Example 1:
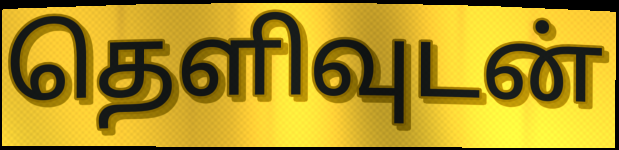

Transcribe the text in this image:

தெளிவுடன்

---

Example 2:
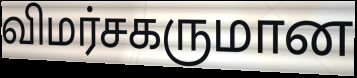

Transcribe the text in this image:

விமர்சகருமான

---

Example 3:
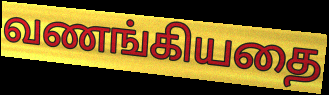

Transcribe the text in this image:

வணங்கியதை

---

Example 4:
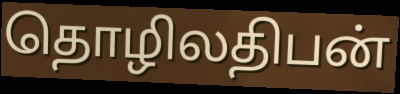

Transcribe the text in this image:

தொழிலதிபன்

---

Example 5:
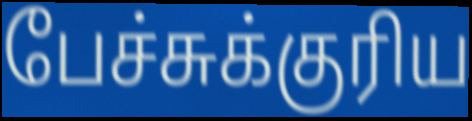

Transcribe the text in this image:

பேச்சுக்குரிய